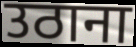
उठाना